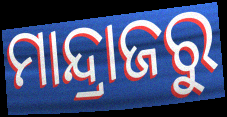
ମାନ୍ଦ୍ରାଜରୁ